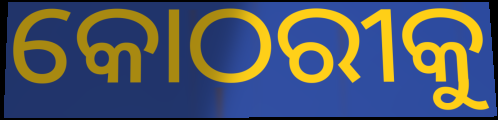
କୋଠରୀକୁ